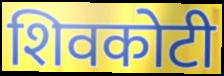
शिवकोटी